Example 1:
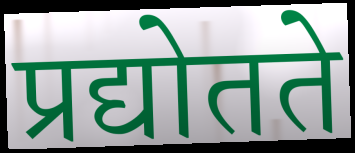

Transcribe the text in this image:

प्रद्योतते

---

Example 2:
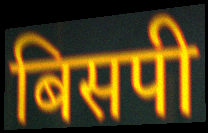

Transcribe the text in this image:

बिसपी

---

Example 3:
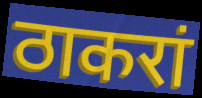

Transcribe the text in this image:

ठाकरां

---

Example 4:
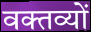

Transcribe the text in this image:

वक्‍तव्‍यों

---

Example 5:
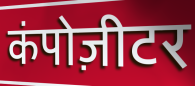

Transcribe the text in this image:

कंपोज़ीटर